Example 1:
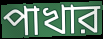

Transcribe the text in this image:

পাখার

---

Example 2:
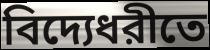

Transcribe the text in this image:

বিদ্যেধরীতে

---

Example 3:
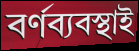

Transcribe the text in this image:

বর্ণব্যবস্থাই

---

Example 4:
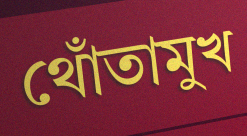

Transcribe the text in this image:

থোঁতামুখ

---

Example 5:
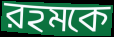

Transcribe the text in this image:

রহমকে